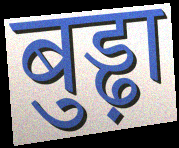
बुड्ढ़ा